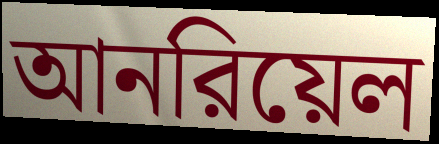
আনরিয়েল